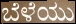
ಬೆಳೆಯು